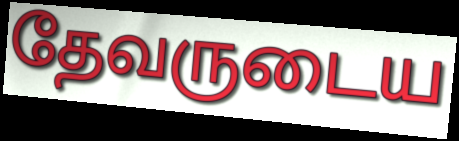
தேவருடைய